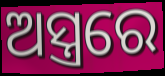
ଅସ୍ତ୍ରରେ